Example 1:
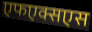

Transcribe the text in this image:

एफएक्सएस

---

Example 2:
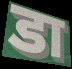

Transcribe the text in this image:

डा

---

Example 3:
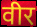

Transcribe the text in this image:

वीर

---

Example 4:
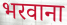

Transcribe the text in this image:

भरवाना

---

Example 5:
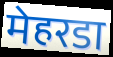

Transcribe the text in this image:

मेहरडा